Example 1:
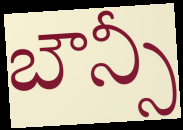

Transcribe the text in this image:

బౌన్సీ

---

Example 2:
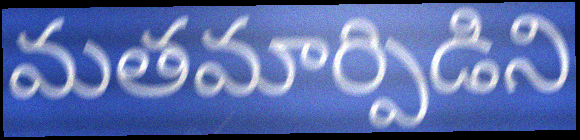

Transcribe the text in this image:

మతమార్పిడిని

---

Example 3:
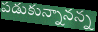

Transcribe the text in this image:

పడుకున్నానన్న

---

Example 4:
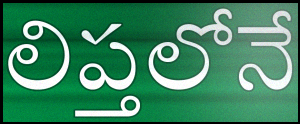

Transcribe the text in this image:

లిప్తలోనే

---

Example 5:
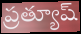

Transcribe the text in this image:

ప్రత్యూష్